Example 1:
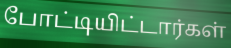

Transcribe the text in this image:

போட்டியிட்டார்கள்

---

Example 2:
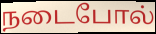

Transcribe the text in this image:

நடைபோல்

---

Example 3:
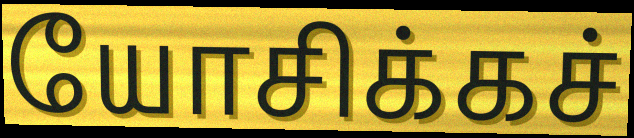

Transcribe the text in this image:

யோசிக்கச்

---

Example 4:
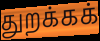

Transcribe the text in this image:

துறக்கக்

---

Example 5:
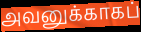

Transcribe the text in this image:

அவனுக்காகப்